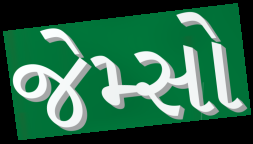
જેમ્સો